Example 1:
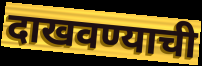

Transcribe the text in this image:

दाखवण्याची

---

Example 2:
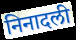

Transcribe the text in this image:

निनादली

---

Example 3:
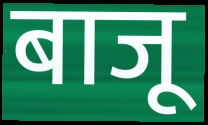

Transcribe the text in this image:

बाजू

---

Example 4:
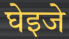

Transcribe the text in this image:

घेइजे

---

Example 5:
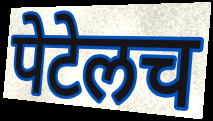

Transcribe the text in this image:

पेटेलच